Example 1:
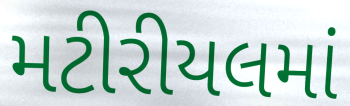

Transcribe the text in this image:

મટીરીયલમાં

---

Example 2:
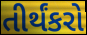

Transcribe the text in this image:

તીર્થંકરો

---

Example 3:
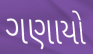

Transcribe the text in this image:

ગણાયો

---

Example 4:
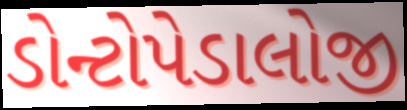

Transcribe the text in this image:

ડોન્ટોપેડાલોજી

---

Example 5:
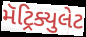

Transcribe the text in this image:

મૅટ્રિક્યુલેટ